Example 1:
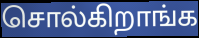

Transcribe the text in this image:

சொல்கிறாங்க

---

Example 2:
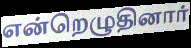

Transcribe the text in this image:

என்றெழுதினார்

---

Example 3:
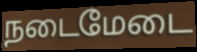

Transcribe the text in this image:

நடைமேடை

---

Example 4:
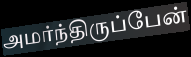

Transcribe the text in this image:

அமர்ந்திருப்பேன்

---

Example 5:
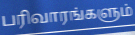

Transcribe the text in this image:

பரிவாரங்களும்